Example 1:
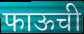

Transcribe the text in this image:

फाऊची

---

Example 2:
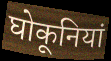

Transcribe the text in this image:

घोकूनियां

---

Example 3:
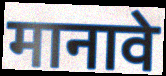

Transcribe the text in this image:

मानावे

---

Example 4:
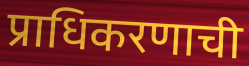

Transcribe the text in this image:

प्राधिकरणाची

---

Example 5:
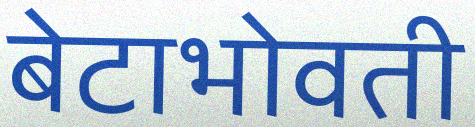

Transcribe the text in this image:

बेटाभोवती